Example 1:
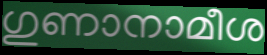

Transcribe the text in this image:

ഗുണാനാമീശ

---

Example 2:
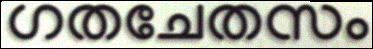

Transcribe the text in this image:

ഗതചേതസം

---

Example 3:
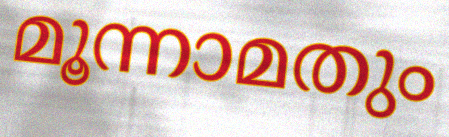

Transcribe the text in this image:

മൂന്നാമതും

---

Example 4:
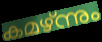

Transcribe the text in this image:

കമഴ്ന്നും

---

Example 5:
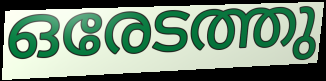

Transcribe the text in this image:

ഒരേടത്തു